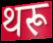
थरू